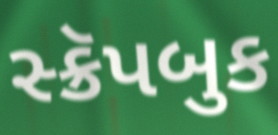
સ્ક્રૅપબુક